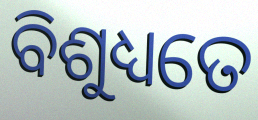
ବିଶୁଧ୍ୟତେ